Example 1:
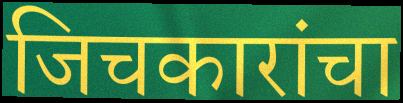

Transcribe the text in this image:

जिचकारांचा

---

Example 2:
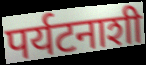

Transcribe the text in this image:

पर्यटनाशी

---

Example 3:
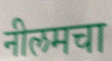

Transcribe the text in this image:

नीलमचा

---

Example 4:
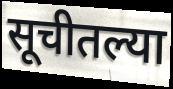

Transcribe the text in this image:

सूचीतल्या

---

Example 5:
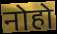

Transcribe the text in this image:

नोहो